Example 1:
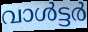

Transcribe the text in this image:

വാൾട്ടർ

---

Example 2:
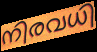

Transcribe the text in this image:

നിരവധി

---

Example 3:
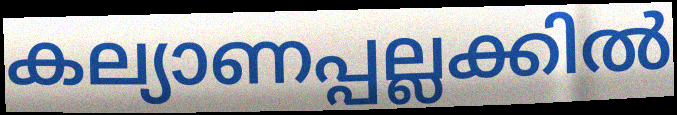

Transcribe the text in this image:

കല്യാണപ്പല്ലക്കിൽ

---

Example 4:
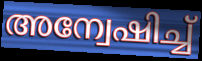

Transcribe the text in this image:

അന്വേഷിച്ച്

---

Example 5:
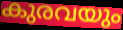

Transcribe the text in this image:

കുരവയും